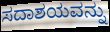
ಸದಾಶಯವನ್ನು